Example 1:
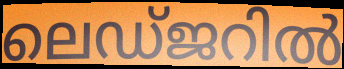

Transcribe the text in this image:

ലെഡ്ജറിൽ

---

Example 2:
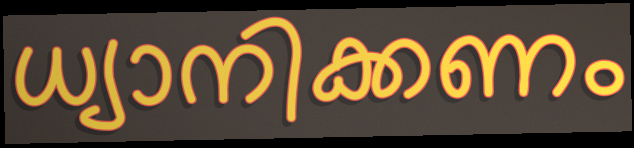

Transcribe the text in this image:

ധ്യാനിക്കണം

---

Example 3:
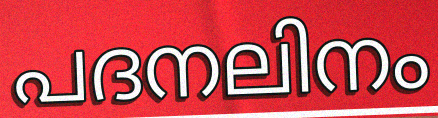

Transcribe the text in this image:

പദനലിനം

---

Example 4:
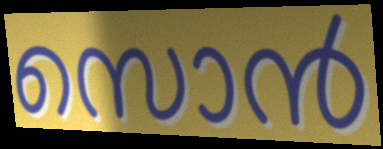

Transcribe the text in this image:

സൊൻ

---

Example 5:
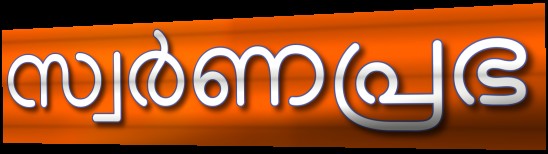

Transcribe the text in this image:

സ്വർണപ്രഭ